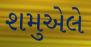
શમુએલે